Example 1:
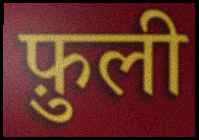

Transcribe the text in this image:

फ़ुली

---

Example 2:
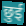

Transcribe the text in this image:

छुई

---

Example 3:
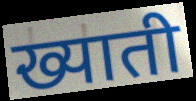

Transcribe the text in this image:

ख्याती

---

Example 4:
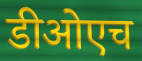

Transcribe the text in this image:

डीओएच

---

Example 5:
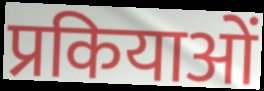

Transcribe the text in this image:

प्रकियाओं